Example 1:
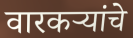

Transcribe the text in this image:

वारकऱ्यांचे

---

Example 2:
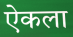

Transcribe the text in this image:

ऐकला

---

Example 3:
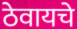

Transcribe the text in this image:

ठेवायचे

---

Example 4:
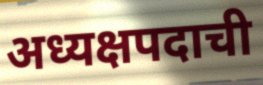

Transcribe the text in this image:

अध्यक्षपदाची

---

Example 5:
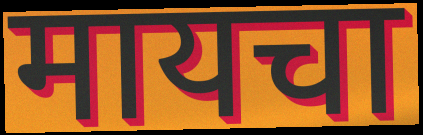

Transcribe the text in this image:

मायचा